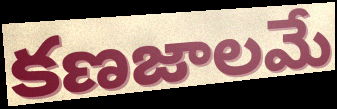
కణజాలమే